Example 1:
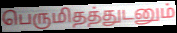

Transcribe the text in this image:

பெருமிதத்துடனும்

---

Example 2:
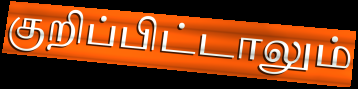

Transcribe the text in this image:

குறிப்பிட்டாலும்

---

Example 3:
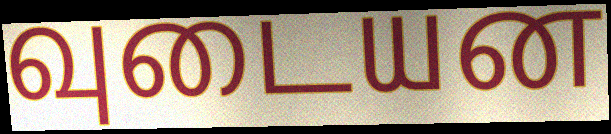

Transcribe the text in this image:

வுடையன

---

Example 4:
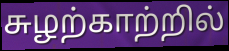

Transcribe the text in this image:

சுழற்காற்றில்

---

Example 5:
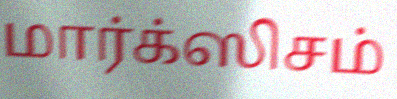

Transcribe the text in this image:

மார்க்ஸிசம்